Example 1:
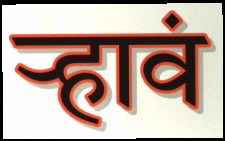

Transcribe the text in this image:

र्‍हावं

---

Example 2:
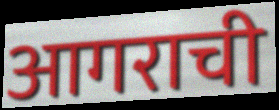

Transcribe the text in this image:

आगराची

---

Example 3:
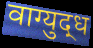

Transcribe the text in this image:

वाग्युद्ध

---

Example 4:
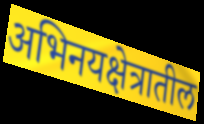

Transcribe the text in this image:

अभिनयक्षेत्रातील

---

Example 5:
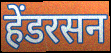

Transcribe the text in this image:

हेंडरसन